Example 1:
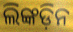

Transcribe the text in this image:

ଲିଙ୍କଡ଼ିନ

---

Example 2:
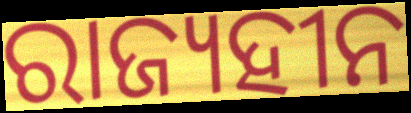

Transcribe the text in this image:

ରାଜ୍ୟହୀନ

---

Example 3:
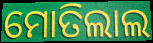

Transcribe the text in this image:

ମୋତିଲାଲ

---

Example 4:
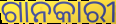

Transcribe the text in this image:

ଗାନକାରୀ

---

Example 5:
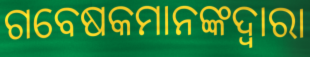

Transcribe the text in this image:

ଗବେଷକମାନଙ୍କଦ୍ୱାରା